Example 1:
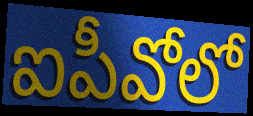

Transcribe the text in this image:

ఐపీవోలో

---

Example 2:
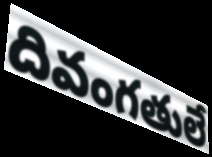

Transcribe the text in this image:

దివంగతులే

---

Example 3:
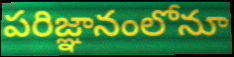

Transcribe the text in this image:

పరిజ్ఞానంలోనూ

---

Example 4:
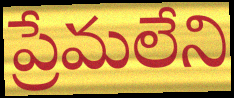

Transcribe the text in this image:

ప్రేమలేని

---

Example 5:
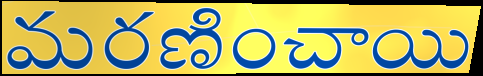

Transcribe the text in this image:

మరణించాయి